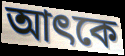
আৎকে